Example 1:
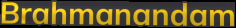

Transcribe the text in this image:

Brahmanandam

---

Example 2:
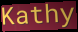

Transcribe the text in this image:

Kathy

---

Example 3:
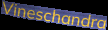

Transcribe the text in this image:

Vineschandra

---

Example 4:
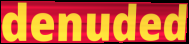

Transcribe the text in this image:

denuded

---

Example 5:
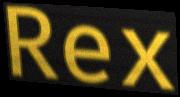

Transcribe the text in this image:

Rex